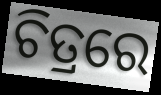
ଚିତ୍ରରେ